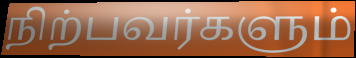
நிற்பவர்களும்